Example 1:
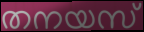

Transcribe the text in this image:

തനയസ്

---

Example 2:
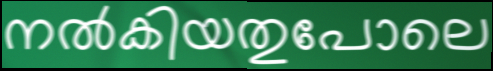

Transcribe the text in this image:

നൽകിയതുപോലെ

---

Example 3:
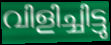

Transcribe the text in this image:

വിളിച്ചിട്ടു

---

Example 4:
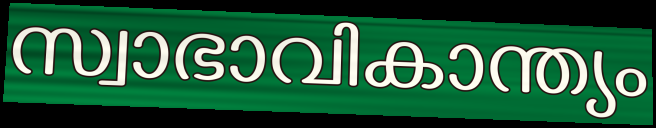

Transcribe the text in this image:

സ്വാഭാവികാന്ത്യം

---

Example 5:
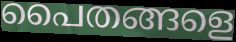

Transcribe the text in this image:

പൈതങ്ങളെ